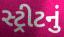
સ્ટ્રીટનું